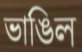
ভাঙিল